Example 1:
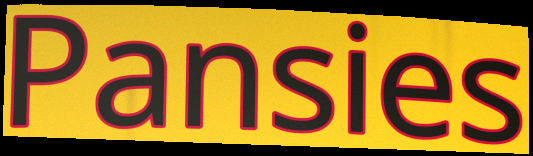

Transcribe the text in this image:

Pansies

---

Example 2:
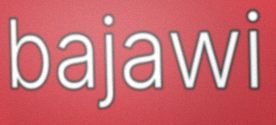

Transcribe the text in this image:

bajawi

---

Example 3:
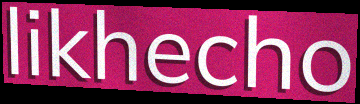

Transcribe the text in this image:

likhecho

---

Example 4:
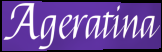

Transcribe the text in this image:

Ageratina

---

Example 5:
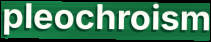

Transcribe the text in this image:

pleochroism